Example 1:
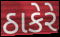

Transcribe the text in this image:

ઠાકેરે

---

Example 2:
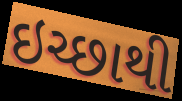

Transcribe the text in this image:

ઇચ્છાથી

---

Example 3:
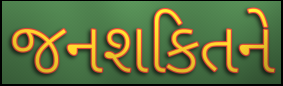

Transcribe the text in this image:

જનશકિતને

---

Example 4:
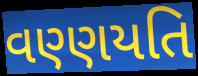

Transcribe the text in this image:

વણ્ણયતિ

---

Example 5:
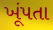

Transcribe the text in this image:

ખૂંપતા